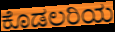
ಕೊಡಲರಿಯ